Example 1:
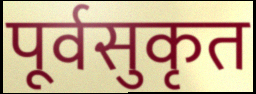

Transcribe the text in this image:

पूर्वसुकृत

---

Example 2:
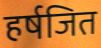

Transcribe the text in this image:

हर्षजित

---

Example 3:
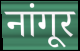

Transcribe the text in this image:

नांगूर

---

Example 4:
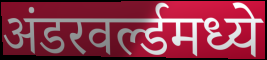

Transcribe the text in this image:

अंडरवर्ल्डमध्ये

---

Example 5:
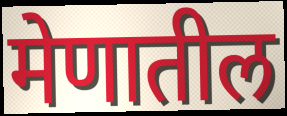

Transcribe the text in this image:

मेणातील